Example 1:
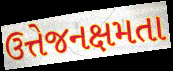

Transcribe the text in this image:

ઉત્તેજનક્ષમતા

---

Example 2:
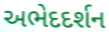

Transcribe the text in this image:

અભેદદર્શન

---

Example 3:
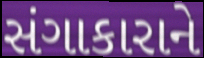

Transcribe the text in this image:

સંગાકારાને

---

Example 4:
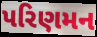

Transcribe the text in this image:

પરિણમન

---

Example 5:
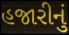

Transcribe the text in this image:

હજારીનું